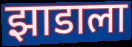
झाडाला